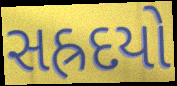
સહ્રદયો